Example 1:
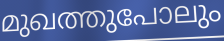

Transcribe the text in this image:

മുഖത്തുപോലും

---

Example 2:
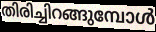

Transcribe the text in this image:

തിരിച്ചിറങ്ങുമ്പോൾ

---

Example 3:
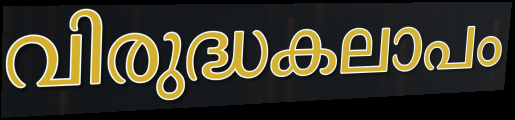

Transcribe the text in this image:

വിരുദ്ധകലാപം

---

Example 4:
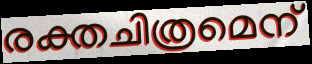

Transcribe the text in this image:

രക്തചിത്രമെന്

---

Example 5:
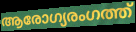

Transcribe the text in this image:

ആരോഗ്യരംഗത്ത്